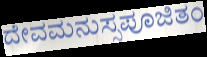
ದೇವಮನುಸ್ಸಪೂಜಿತಂ